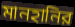
মানহানির